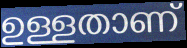
ഉള്ളതാണ്